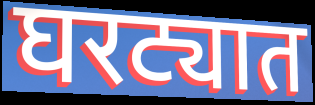
घरट्यात